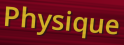
Physique